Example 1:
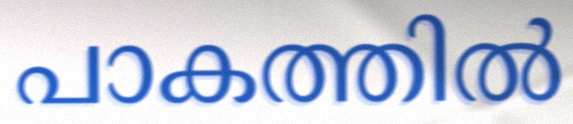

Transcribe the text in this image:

പാകത്തിൽ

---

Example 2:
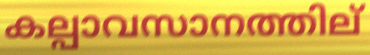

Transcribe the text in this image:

കല്പാവസാനത്തില്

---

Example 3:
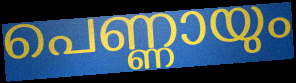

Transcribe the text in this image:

പെണ്ണായും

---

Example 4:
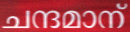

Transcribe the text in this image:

ചന്ദമാന്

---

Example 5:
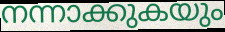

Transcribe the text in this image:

നന്നാക്കുകയും